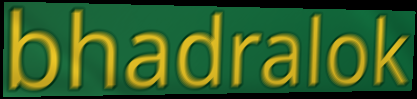
bhadralok